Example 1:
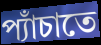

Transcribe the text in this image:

প্যাঁচাতে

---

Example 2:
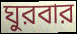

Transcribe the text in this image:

ঘুরবার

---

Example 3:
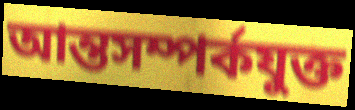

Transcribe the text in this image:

আন্তসম্পর্কযুক্ত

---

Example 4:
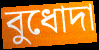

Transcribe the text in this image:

বুধোদা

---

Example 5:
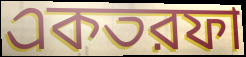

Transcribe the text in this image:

একতরফা